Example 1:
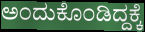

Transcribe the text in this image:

ಅಂದುಕೊಂಡಿದ್ದಕ್ಕೆ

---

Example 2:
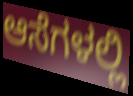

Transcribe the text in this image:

ಆಸೆಗಳಲ್ಲಿ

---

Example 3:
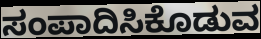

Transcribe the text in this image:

ಸಂಪಾದಿಸಿಕೊಡುವ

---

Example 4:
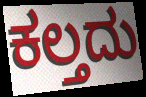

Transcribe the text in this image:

ಕಲ್ತದು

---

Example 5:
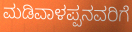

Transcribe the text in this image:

ಮಡಿವಾಳಪ್ಪನವರಿಗೆ